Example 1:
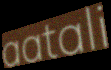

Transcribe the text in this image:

aatali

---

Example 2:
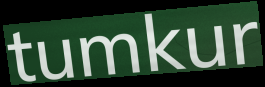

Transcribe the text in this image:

tumkur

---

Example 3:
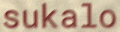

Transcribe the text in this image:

sukalo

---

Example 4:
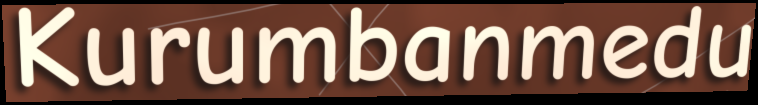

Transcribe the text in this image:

Kurumbanmedu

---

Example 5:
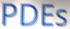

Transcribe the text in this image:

PDEs